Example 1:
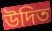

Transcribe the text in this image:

উদিত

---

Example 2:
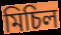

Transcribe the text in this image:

মিচিল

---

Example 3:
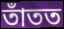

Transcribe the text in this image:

তাঁতত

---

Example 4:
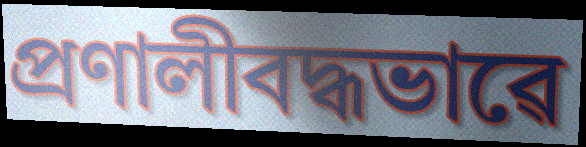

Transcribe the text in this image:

প্ৰণালীবদ্ধভাৱে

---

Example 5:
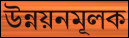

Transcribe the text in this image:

উন্নয়নমূলক